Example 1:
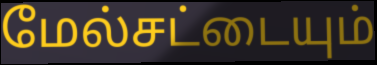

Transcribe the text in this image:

மேல்சட்டையும்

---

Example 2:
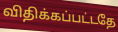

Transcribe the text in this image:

விதிக்கப்பட்டதே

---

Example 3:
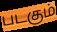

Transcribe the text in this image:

படகும்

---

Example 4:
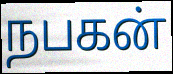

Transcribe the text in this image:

நபகன்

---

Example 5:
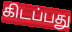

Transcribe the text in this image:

கிடப்பது